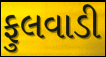
ફુલવાડી